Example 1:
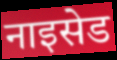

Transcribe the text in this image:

नाइसेड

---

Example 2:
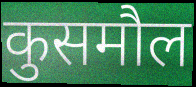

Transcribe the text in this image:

कुसमौल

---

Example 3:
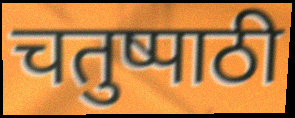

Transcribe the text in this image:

चतुष्पाठी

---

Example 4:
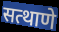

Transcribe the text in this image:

सत्थाणे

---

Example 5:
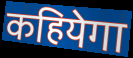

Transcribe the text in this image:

कहियेगा